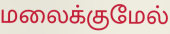
மலைக்குமேல்